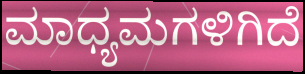
ಮಾಧ್ಯಮಗಳಿಗಿದೆ